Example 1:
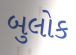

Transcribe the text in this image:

બુલોક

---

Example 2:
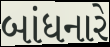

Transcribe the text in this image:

બાંધનારે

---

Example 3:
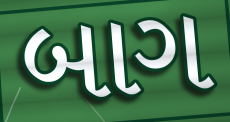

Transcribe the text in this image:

બાગ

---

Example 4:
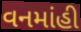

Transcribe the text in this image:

વનમાંહી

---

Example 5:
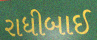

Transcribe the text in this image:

રાધીબાઈ